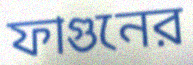
ফাগুনের